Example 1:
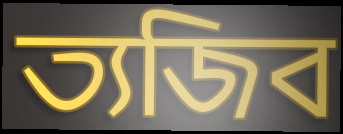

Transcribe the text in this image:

ত্যজিব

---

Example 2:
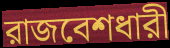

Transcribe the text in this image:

রাজবেশধারী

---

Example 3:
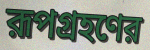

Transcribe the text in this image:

রূপগ্রহণের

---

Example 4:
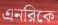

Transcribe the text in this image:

এনরিকে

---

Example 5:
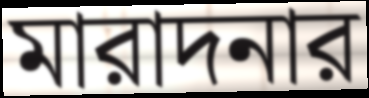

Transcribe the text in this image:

মারাদনার